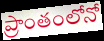
ప్రాంతంలోనో